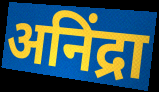
अनिंद्रा